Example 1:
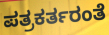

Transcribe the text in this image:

ಪತ್ರಕರ್ತರಂತೆ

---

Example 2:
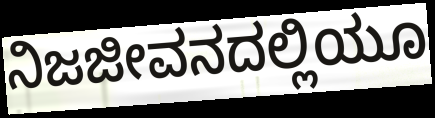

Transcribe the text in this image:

ನಿಜಜೀವನದಲ್ಲಿಯೂ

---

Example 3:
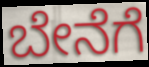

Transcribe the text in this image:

ಬೇನೆಗೆ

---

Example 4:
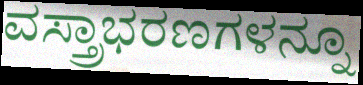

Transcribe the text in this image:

ವಸ್ತ್ರಾಭರಣಗಳನ್ನೂ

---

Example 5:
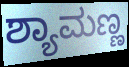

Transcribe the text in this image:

ಶ್ಯಾಮಣ್ಣ